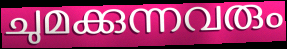
ചുമക്കുന്നവരും